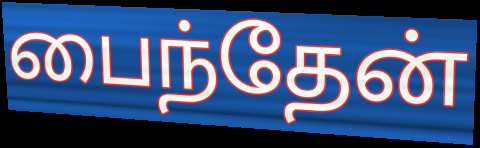
பைந்தேன்